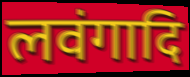
लवंगादि